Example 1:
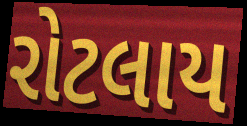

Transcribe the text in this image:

રોટલાય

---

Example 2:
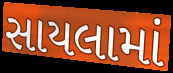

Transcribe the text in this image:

સાયલામાં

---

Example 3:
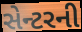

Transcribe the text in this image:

સેન્ટરની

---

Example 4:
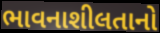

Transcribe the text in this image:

ભાવનાશીલતાનો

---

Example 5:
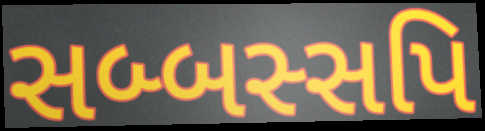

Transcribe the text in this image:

સબ્બસ્સપિ